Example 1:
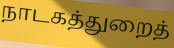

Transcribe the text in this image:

நாடகத்துறைத்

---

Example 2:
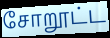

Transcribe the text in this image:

சோறூட்ட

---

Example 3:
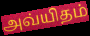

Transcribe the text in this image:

அவ்யிதம்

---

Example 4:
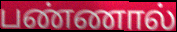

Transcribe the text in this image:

பண்ணால்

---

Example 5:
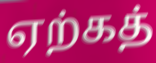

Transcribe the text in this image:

ஏற்கத்